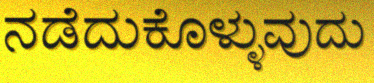
ನಡೆದುಕೊಳ್ಳುವುದು